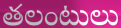
తలంటులు